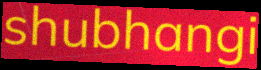
shubhangi